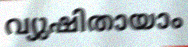
വ്യുഷിതായാം